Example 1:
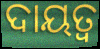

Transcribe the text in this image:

ଦାୟତ୍ବ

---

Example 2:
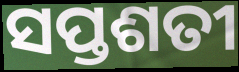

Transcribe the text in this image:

ସପ୍ତଶତୀ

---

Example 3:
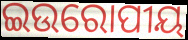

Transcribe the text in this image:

ଇଉରୋପୀୟ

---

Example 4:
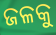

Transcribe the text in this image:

ଜଳକୁ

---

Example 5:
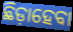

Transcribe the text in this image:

ଛିଡ଼ାହେବା